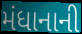
મંધાનાની